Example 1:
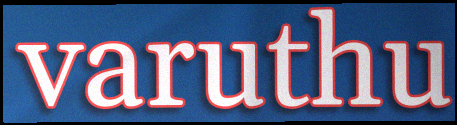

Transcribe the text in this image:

varuthu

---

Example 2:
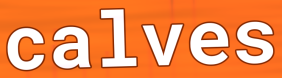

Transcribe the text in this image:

calves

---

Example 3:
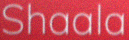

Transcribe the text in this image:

Shaala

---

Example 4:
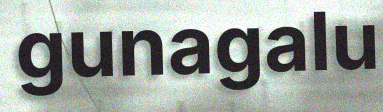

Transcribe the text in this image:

gunagalu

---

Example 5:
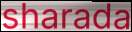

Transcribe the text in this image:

sharada